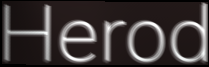
Herod